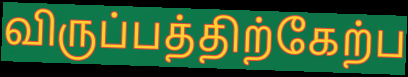
விருப்பத்திற்கேற்ப